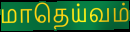
மாதெய்வம்